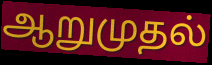
ஆறுமுதல்